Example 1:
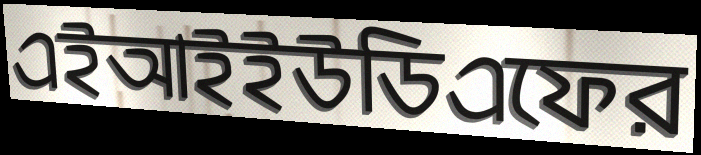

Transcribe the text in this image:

এইআইইউডিএফের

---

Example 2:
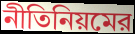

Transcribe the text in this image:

নীতিনিয়মের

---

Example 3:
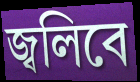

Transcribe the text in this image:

জ্বলিবে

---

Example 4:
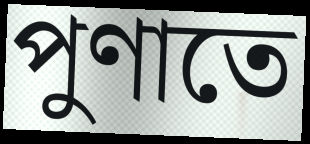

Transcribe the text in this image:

পুণাতে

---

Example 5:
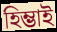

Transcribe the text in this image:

হিম্ভাই